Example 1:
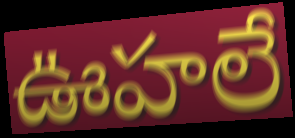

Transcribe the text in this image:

ఊహలే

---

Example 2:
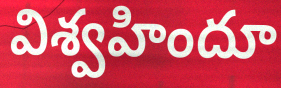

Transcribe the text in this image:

విశ్వహిందూ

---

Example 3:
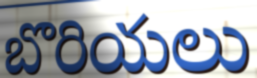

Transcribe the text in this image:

బొరియలు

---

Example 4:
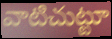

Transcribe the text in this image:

వాటిచుట్టూ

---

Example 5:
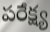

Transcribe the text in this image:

పరేక్ష్య